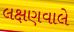
લક્ષણવાલે